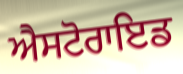
ਐਸਟੋਰਾਇਡ